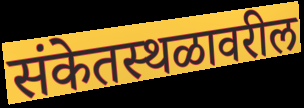
संकेतस्थळावरील